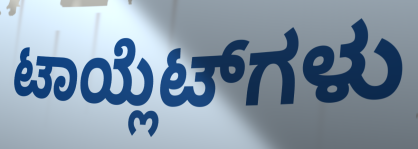
ಟಾಯ್ಲೆಟ್‌ಗಳು